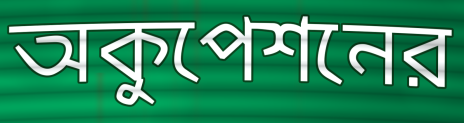
অকুপেশনের